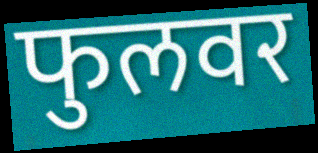
फुलवर